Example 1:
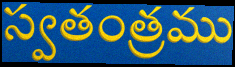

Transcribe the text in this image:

స్వతంత్రము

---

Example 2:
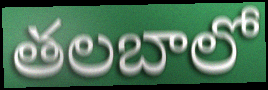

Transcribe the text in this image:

తలబాలో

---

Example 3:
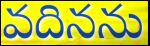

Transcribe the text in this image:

వదినను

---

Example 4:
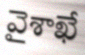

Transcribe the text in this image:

వైశాఖే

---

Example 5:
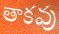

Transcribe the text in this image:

తాకవు